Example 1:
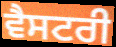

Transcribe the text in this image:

ਵੈਸਟਰੀ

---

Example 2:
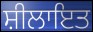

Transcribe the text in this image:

ਸ਼ੀਲਾਇਤ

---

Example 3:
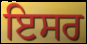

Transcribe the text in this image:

ਇਸਰ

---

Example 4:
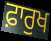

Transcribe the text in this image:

ਫ਼ਾਰੁਖ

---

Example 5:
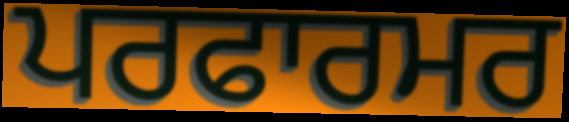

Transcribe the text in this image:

ਪਰਫਾਰਮਰ